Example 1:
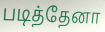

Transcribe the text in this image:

படித்தேனா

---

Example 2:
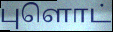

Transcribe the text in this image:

புளொட்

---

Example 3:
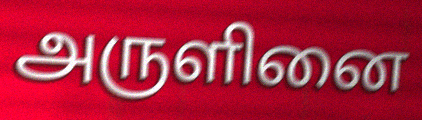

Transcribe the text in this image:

அருளினை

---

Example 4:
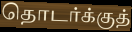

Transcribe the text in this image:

தொடர்க்குத்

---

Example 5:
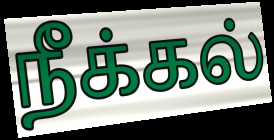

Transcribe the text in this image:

நீக்கல்